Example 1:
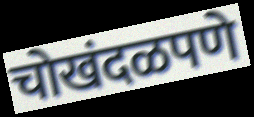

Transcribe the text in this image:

चोखंदळपणे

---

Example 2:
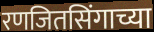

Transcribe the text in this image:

रणजितसिंगाच्या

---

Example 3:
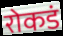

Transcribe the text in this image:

रोकडं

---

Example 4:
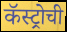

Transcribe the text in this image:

कॅस्ट्रोची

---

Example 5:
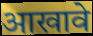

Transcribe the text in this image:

आखावे